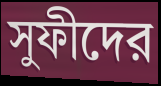
সুফীদের